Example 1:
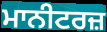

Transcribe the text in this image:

ਮਾਨੀਟਰਜ਼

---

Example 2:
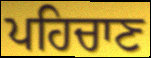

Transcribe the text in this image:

ਪਹਿਚਾਣ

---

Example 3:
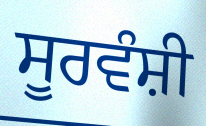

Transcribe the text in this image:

ਸੂਰਵੰਸ਼ੀ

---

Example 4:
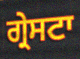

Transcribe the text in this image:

ਗ੍ਰੇਸਟਾ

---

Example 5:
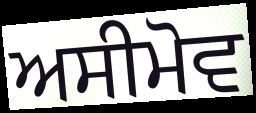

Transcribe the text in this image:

ਅਸੀਮੋਵ